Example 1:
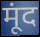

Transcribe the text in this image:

मूंद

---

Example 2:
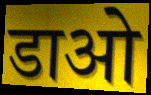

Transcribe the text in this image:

डाओ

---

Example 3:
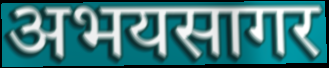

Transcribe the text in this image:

अभयसागर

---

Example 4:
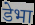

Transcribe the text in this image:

डेभा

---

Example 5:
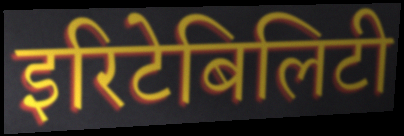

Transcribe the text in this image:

इरिटेबिलिटी